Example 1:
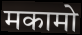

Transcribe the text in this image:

मकामो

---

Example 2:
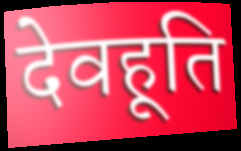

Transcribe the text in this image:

देवहूति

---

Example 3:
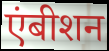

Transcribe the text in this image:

एंबीशन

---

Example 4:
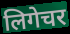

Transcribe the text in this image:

लिगेचर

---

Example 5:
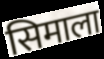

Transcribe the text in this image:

सिमाला